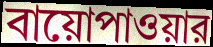
বায়োপাওয়ার